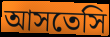
আসতেসি